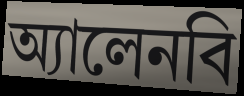
অ্যালেনবি